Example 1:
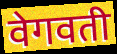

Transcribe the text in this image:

वेगवती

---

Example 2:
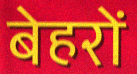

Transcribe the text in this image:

बेहरों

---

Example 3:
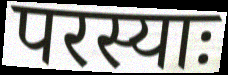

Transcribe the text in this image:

परस्याः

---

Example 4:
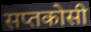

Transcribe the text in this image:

सप्तकोसी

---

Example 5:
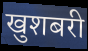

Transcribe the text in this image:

खुशबरी